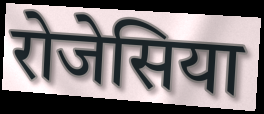
रोजेसिया